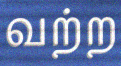
வற்ற